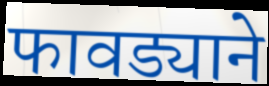
फावड्याने